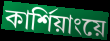
কার্শিয়াংয়ে